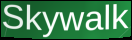
Skywalk